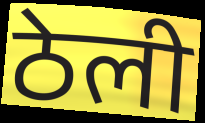
ठेली